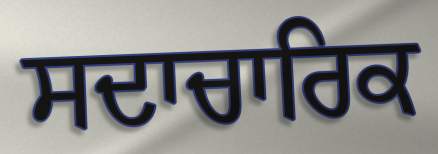
ਸਦਾਚਾਰਿਕ